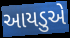
આયડુએ